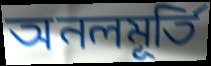
অনলমূর্তি